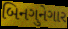
બિનગુનેગાર